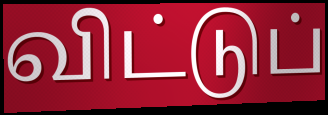
விட்டுப்